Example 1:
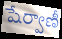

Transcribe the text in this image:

షేర్వాణీ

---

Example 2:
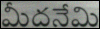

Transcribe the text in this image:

మీదనేమి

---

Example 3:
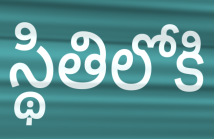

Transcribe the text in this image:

స్థితిలోకి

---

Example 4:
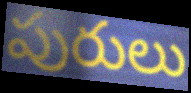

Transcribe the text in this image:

పురులు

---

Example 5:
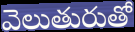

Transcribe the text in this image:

వెలుతురుతో